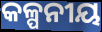
କଳ୍ପନୀୟ